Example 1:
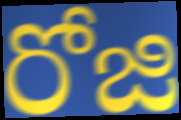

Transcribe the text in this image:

రోజి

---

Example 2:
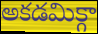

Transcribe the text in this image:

అకడమిక్గా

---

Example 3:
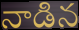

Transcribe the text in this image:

నాడిన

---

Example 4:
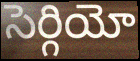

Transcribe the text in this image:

సెర్గియో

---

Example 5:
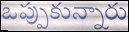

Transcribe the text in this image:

ఒప్పుకున్నారు